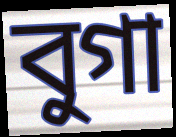
বুগা